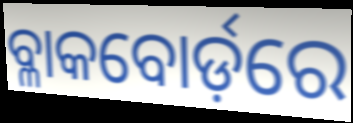
ବ୍ଳାକବୋର୍ଡ଼ରେ